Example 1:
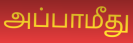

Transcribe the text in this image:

அப்பாமீது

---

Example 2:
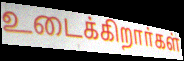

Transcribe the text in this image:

உடைக்கிறார்கள்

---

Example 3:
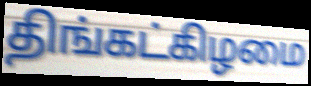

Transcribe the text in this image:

திங்கட்கிழமை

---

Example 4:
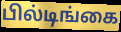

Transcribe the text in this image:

பில்டிங்கை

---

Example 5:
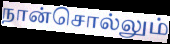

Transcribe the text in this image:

நான்சொல்லும்